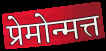
प्रेमोन्मत्त